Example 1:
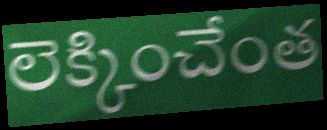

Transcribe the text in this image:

లెక్కించేంత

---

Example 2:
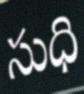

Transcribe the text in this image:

సుధి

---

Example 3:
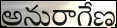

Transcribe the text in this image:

అనురాగేణ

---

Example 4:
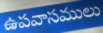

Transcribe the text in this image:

ఉపవాసములు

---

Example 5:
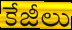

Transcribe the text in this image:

కేజీలు